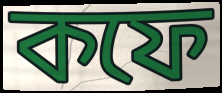
কফে